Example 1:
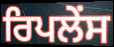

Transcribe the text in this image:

ਰਿਪਲੇਂਸ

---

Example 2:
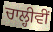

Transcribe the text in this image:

ਚਾਲ੍ਹੀਵੀਂ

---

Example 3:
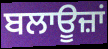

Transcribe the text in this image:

ਬਲਾਊਜ਼ਾਂ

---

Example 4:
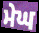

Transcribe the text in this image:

ਮੇਘ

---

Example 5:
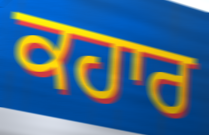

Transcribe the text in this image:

ਕਹਾਰ